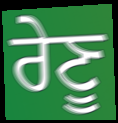
ਰੇਣੂ